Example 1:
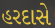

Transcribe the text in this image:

હરદાસે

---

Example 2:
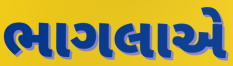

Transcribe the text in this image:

ભાગલાએ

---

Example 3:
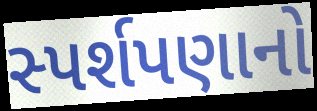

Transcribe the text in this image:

સ્પર્શપણાનો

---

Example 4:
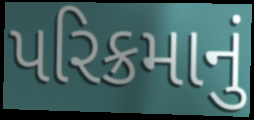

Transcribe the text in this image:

પરિક્રમાનું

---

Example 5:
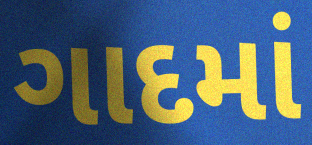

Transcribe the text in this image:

ગાદમાં